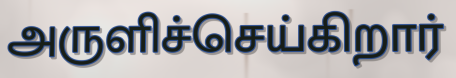
அருளிச்செய்கிறார்